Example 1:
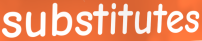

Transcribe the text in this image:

substitutes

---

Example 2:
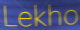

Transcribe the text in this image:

Lekho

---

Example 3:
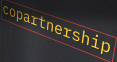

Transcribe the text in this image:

copartnership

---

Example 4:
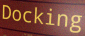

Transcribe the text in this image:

Docking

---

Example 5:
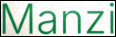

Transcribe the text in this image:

Manzi